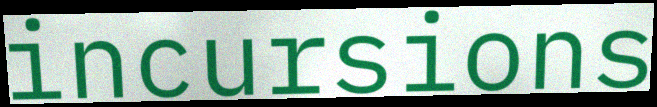
incursions